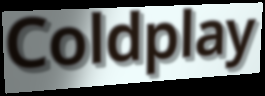
Coldplay